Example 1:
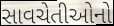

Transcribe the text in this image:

સાવચેતીઓનો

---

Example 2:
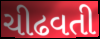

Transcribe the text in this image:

ચીઢવતી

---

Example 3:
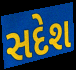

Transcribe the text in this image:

સદેશ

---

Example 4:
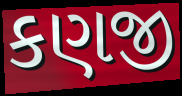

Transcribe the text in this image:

કણજી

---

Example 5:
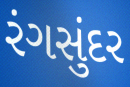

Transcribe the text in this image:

રંગસુંદર